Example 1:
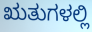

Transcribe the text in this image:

ಋತುಗಳಲ್ಲಿ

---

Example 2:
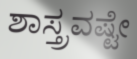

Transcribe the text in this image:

ಶಾಸ್ತ್ರವಷ್ಟೇ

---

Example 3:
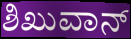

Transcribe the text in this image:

ಶಿಖುವಾನ್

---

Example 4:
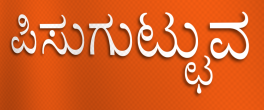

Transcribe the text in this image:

ಪಿಸುಗುಟ್ಟುವ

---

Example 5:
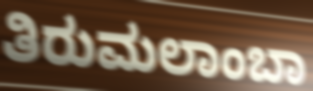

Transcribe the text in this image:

ತಿರುಮಲಾಂಬಾ